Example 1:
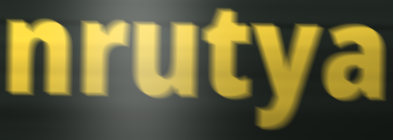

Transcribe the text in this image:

nrutya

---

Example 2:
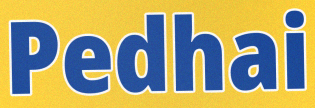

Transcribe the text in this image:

Pedhai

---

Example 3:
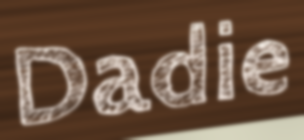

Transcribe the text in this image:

Dadie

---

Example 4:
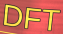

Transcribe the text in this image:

DFT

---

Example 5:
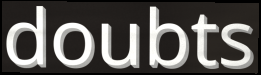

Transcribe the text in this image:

doubts